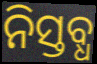
ନିସ୍ତବ୍ଧ